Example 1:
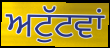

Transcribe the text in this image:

ਅਟੁੱਟਵਾਂ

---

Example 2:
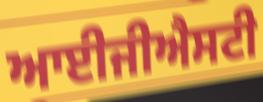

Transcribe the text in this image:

ਆਈਜੀਐਸਟੀ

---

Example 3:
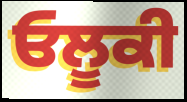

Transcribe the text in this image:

ਓਲੂਕੀ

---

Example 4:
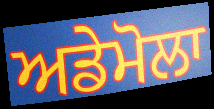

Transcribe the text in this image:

ਅਡੇਮੋਲਾ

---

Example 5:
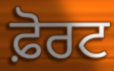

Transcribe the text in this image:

ਫ਼ੋਰਟ